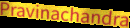
Pravinachandra